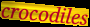
crocodiles